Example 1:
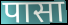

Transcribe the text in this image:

पासा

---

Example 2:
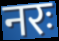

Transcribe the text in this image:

नरः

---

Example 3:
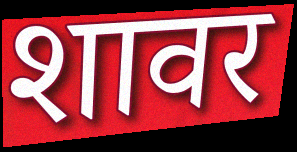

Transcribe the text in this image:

शावर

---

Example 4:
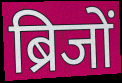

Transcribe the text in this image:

ब्रिजों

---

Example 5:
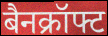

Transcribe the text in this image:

बैनक्रॉफ्ट